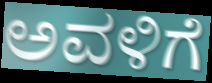
ಅವಳಿಗೆ